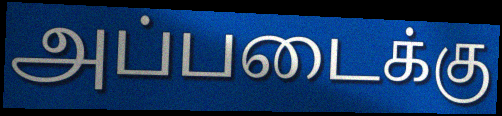
அப்படைக்கு